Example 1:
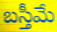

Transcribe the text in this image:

బస్తీమే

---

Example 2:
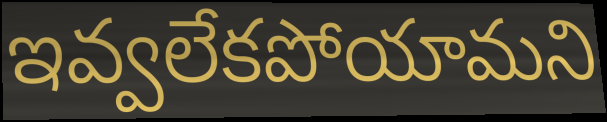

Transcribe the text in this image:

ఇవ్వలేకపోయామని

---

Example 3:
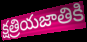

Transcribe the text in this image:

క్షత్రియజాతికి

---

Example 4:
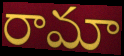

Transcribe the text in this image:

రామా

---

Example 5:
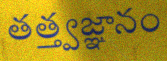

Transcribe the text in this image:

తత్త్వజ్ఞానం